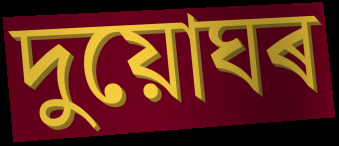
দুয়োঘৰ